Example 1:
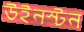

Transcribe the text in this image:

উইনস্টন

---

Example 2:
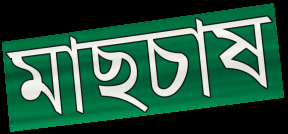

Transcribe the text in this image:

মাছচাষ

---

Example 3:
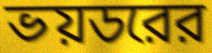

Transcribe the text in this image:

ভয়ডরের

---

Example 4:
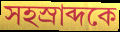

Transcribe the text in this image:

সহস্রাব্দকে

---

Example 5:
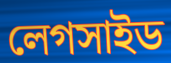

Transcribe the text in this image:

লেগসাইড